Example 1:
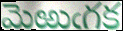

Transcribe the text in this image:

మెఱుఁగక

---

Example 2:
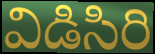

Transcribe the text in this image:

విడిసిరి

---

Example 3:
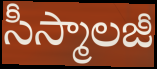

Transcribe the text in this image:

సీస్మాలజీ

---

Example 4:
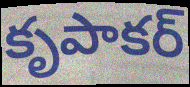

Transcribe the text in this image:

కృపాకర్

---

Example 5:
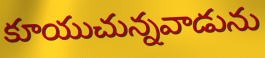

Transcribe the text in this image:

కూయుచున్నవాడును